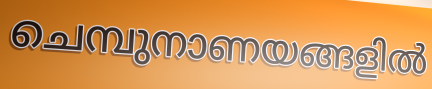
ചെമ്പുനാണയങ്ങളിൽ